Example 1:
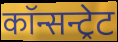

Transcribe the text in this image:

कॉन्सन्ट्रेट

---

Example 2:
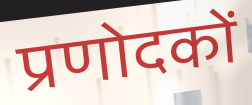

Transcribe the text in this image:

प्रणोदकों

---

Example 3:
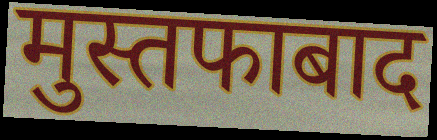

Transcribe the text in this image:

मुस्तफाबाद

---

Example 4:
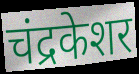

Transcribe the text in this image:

चंद्रकेशर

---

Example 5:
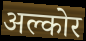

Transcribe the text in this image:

अल्कोर